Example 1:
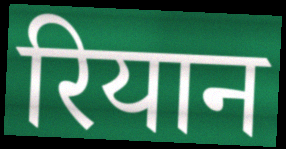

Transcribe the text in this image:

रियान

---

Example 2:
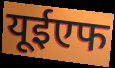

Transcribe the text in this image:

यूईएफ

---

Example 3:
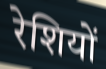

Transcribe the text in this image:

रेशियों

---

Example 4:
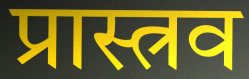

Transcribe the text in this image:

प्रास्त्रव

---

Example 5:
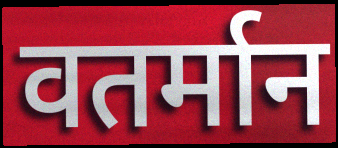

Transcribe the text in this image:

वतर्मान